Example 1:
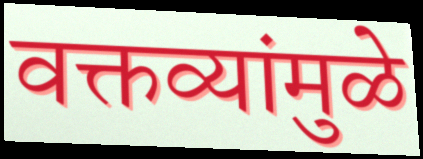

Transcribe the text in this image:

वक्तव्यांमुळे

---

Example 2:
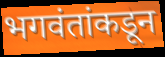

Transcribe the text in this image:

भगवंतांकडून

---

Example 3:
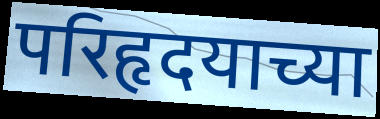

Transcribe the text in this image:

परिहृदयाच्या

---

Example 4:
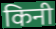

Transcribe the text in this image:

किनी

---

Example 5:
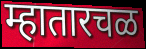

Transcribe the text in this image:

म्हातारचळ